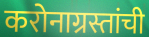
करोनाग्रस्तांची